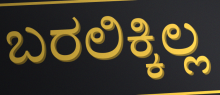
ಬರಲಿಕ್ಕಿಲ್ಲ